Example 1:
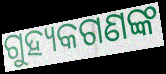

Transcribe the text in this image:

ଗୁହ୍ୟକଗଣଙ୍କ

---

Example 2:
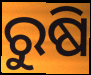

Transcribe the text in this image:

ରୁଷି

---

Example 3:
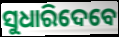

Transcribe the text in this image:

ସୁଧାରିଦେବେ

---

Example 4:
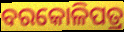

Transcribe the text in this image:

ବରକୋଳିପତ୍ର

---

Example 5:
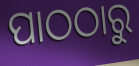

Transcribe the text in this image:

ପାଠଠାରୁ